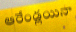
ఆరేండ్లయినా